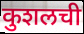
कुशलची